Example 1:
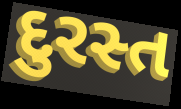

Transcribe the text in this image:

દુરસ્ત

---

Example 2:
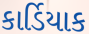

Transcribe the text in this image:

કાર્ડિયાક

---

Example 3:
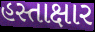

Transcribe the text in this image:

હસ્તાક્ષાર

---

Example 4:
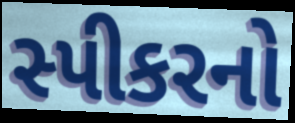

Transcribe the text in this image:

સ્પીકરનો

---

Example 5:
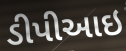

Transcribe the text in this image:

ડીપીઆઇ